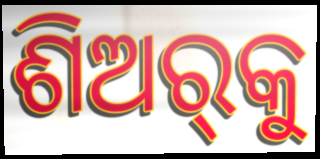
ଶିଅର୍‌କୁ